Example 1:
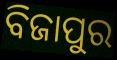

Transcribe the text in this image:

ବିଜାପୁର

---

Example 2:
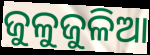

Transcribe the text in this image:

ଜୁଳୁଜୁଳିଆ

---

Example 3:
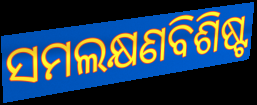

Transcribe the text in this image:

ସମଲକ୍ଷଣବିଶିଷ୍ଟ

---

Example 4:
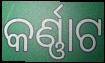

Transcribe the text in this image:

କର୍ଣ୍ଣାଟ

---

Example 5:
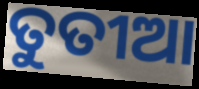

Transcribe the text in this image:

ତୁତୀଆ